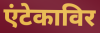
एंटेकाविर